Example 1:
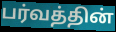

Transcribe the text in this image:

பர்வத்தின்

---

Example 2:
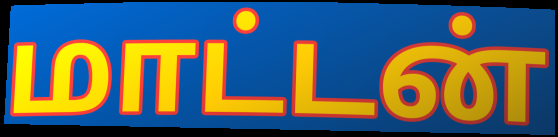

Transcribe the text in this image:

மாட்டன்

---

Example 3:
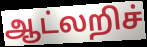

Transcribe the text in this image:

ஆட்லறிச்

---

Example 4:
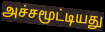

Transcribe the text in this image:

அச்சமூட்டியது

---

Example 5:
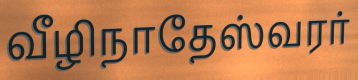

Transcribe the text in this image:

வீழிநாதேஸ்வரர்